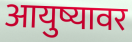
आयुष्यावर